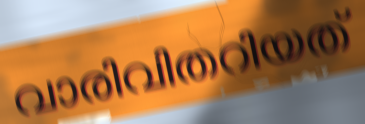
വാരിവിതറിയത്